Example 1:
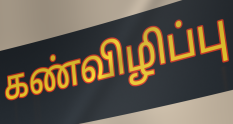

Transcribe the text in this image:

கண்விழிப்பு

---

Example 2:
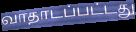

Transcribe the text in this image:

வாதாடப்பட்டது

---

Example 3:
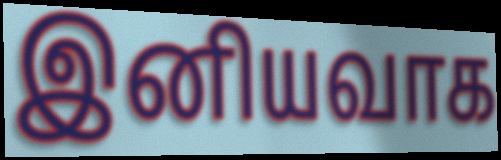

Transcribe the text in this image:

இனியவாக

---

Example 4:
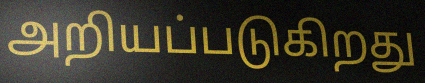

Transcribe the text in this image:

அறியப்படுகிறது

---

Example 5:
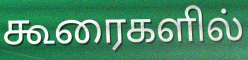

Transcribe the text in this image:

கூரைகளில்